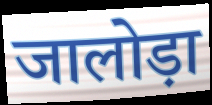
जालोड़ा